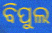
ବିପୁଲ